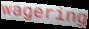
wagering